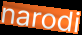
narodi